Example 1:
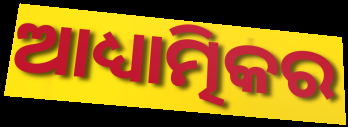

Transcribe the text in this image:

ଆଧ୍ୟାତ୍ମିକର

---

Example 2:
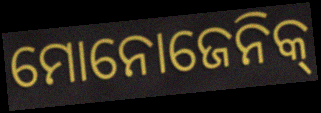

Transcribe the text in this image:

ମୋନୋଜେନିକ୍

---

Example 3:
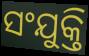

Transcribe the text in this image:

ସଂଯୁକ୍ତି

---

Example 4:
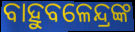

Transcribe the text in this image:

ବାହୁବଳେନ୍ଦ୍ରଙ୍କ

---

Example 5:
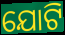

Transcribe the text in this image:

ଯୋଟି